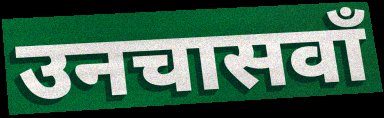
उनचासवाँ